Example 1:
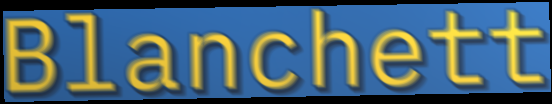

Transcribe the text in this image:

Blanchett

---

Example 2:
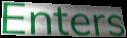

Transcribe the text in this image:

Enters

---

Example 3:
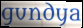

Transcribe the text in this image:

gundya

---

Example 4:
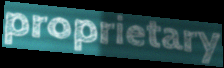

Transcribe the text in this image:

proprietary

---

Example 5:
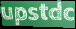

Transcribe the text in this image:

upstdc